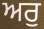
ਅਰੁ